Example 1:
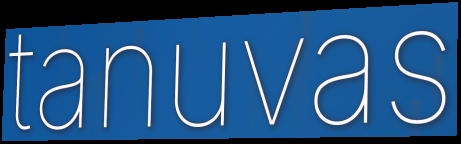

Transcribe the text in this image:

tanuvas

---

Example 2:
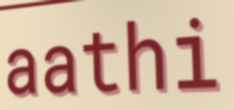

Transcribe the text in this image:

aathi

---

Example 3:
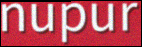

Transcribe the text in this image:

nupur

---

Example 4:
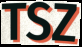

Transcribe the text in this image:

TSZ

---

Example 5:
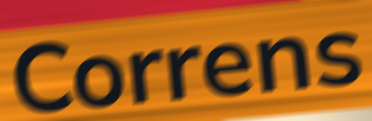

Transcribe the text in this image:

Correns